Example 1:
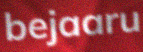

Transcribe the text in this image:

bejaaru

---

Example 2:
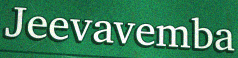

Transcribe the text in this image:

Jeevavemba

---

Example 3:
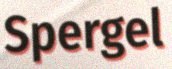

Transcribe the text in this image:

Spergel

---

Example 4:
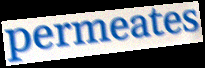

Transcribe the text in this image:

permeates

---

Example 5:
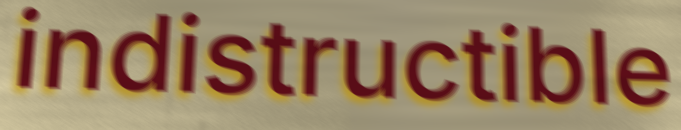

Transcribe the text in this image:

indistructible